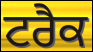
ਟਰੈਕ